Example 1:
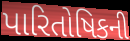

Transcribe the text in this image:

પારિતોષિકની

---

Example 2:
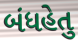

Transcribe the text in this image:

બંધહેતુ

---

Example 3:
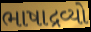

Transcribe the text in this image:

ભાષાદ્રવ્યો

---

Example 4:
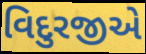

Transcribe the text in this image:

વિદુરજીએ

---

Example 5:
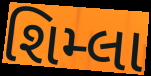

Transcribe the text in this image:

શિમ્લા